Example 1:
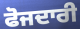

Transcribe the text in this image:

ਫੋਜਦਾਰੀ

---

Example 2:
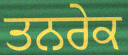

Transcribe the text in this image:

ਤਨਰੇਕ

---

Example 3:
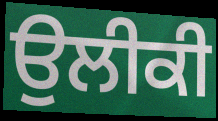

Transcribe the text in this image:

ਉਲੀਕੀ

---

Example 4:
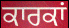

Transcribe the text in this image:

ਕਾਰਕਾਂ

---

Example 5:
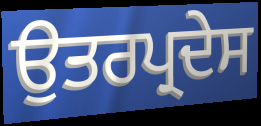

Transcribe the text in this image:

ਉਤਰਪ੍ਰਦੇਸ